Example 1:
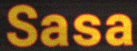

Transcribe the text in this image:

Sasa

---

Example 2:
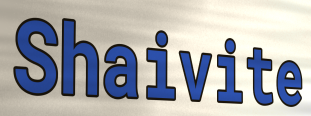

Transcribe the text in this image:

Shaivite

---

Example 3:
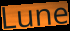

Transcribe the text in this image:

Lune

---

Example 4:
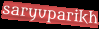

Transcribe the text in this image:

saryuparikh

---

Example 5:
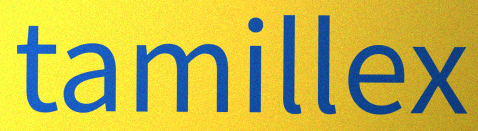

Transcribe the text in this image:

tamillex